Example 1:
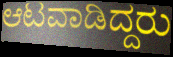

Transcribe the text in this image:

ಆಟವಾಡಿದ್ದರು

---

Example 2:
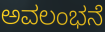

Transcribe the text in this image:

ಅವಲಂಭನೆ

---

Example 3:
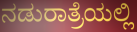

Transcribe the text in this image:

ನಡುರಾತ್ರೆಯಲ್ಲಿ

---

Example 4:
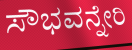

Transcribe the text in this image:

ಸೌಭವನ್ನೇರಿ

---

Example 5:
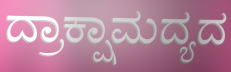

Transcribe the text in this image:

ದ್ರಾಕ್ಷಾಮದ್ಯದ